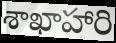
శాఖాహారి